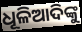
ଧୂଳିଆଦିଙ୍କୁ